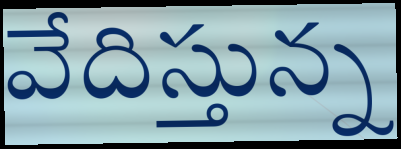
వేదిస్తున్న